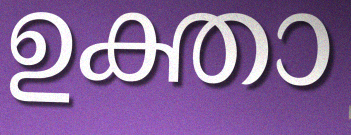
ഉക്താ